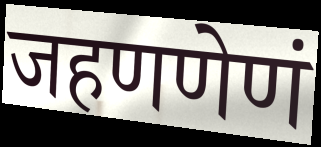
जहणणेणं